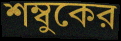
শম্বুকের